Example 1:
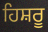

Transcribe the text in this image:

ਹਿਸ਼ਰੂ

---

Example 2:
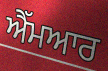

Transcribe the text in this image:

ਐੱਮਆਰ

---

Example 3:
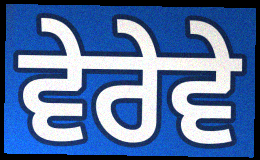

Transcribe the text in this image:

ਵੇਰੇਵੇ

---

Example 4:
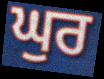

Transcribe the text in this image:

ਘੁਰ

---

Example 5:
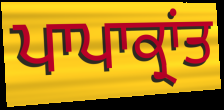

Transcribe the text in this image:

ਪਾਪਾਕ੍ਰਾਂਤ